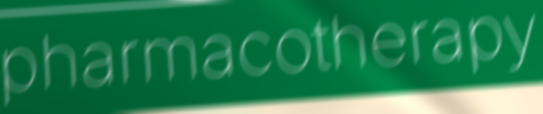
pharmacotherapy